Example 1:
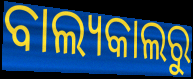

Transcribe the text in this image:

ବାଲ୍ୟକାଲରୁ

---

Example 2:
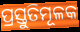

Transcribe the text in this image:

ପ୍ରସ୍ତୁତିମୂଳକ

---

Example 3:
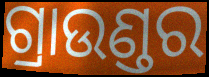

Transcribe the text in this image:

ଗ୍ରାଉଣ୍ଡର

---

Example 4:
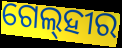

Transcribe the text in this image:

ଗେଲ୍‌ହୀର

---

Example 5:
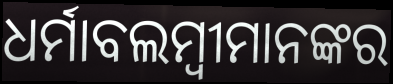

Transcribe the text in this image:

ଧର୍ମାବଲମ୍ବୀମାନଙ୍କର